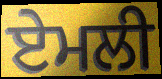
ਏਮਲੀ